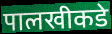
पालखीकडे